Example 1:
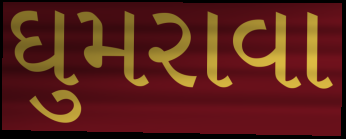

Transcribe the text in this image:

ઘુમરાવા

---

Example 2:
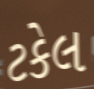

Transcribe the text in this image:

ટકેલ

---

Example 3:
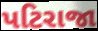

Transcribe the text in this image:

પટિરાજા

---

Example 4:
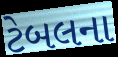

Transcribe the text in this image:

ટેબલના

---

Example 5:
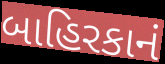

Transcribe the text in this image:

બાહિરકાનં